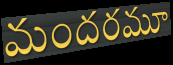
మందరమూ